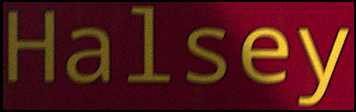
Halsey